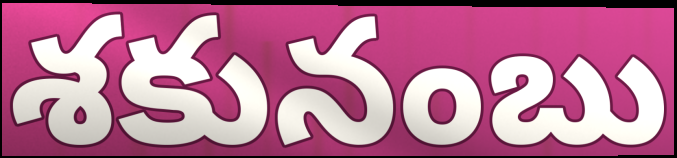
శకునంబు